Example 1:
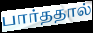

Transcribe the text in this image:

பார்ததால்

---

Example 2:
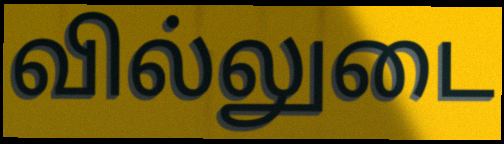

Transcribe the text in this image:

வில்லுடை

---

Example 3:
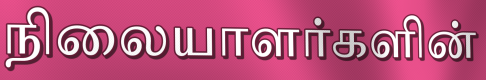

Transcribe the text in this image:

நிலையாளர்களின்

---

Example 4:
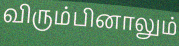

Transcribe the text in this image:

விரும்பினாலும்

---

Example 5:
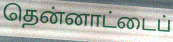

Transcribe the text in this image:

தென்னாட்டைப்